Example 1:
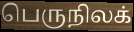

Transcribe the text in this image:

பெருநிலக்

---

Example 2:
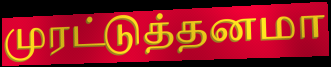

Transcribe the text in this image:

முரட்டுத்தனமா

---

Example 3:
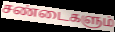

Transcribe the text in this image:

சண்டைகளும்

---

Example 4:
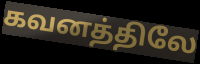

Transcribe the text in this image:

கவனத்திலே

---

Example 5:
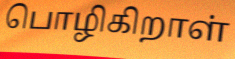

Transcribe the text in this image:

பொழிகிறாள்